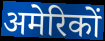
अमेरिकों